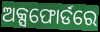
ଅକ୍ସଫୋର୍ଡରେ